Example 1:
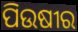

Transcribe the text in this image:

ପିଉଷୀର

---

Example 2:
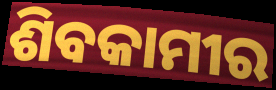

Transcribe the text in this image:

ଶିବକାମୀର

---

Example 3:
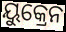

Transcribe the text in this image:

ୟୁକ୍ରେନ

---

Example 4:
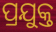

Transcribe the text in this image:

ପ୍ରଯୁକ୍ତ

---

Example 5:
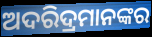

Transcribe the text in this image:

ଅଦରିଦ୍ରମାନଙ୍କର